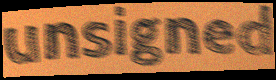
unsigned